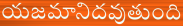
యజమానిదవుతుంది